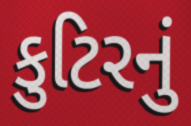
કુટિરનું